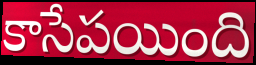
కాసేపయింది